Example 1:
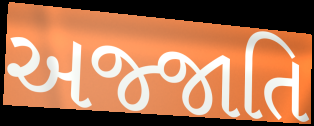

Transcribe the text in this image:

અજ્જાતિ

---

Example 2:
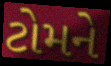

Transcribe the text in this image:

ટોમને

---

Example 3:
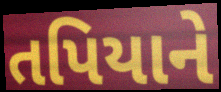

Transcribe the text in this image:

તપિયાને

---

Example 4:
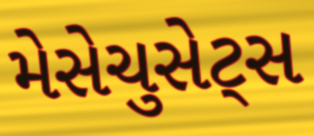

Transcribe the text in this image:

મેસેચુસેટ્સ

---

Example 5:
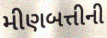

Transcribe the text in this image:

મીણબત્તીની